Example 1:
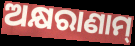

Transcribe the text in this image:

ଅକ୍ଷରାଣାମ୍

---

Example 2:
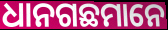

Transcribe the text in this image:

ଧାନଗଛମାନେ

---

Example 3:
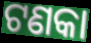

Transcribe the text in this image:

ଟଣକା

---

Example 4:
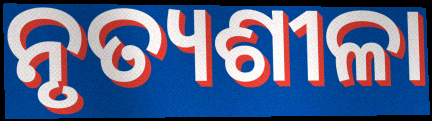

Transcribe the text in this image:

ନୃତ୍ୟଶୀଳା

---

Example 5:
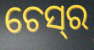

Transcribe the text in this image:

ଚେସ୍‌ର